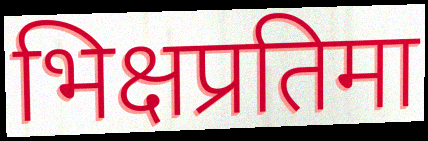
भिक्षप्रतिमा